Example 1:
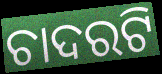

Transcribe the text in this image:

ଚାଦରଟି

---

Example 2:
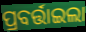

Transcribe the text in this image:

ପ୍ରବର୍ତ୍ତାଇଲା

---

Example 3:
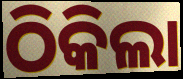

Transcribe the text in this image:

ଠିକିଲା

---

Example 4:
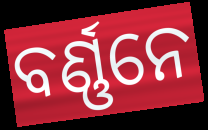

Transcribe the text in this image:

ବର୍ଣ୍ଣନେ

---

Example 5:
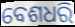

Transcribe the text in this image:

ବେଶଧରି